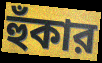
হুঁকার